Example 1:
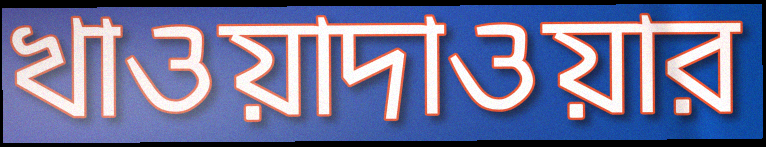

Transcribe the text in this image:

খাওয়াদাওয়ার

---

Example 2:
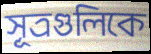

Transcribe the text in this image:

সূত্রগুলিকে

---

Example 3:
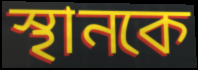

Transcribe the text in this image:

স্থানকে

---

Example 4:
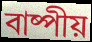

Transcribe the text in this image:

বাষ্পীয়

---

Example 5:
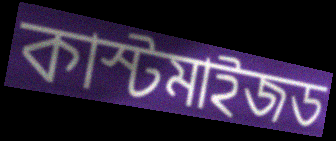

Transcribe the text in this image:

কাস্টমাইজড